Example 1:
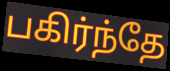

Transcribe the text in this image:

பகிர்ந்தே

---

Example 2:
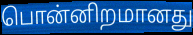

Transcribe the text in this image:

பொன்னிறமானது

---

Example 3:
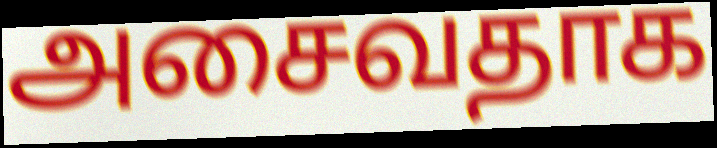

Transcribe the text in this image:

அசைவதாக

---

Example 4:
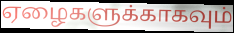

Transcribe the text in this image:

ஏழைகளுக்காகவும்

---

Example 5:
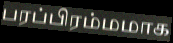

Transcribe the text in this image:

பரப்பிரம்மமாக